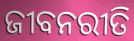
ଜୀବନରୀତି